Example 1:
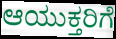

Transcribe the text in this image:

ಆಯುಕ್ತರಿಗೆ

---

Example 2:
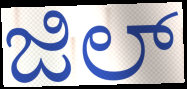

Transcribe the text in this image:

ಜಿಲ್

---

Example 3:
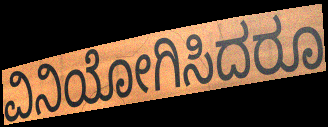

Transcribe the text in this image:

ವಿನಿಯೋಗಿಸಿದರೂ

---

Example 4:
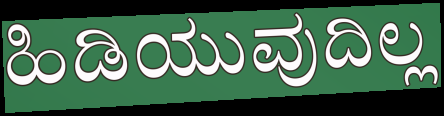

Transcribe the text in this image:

ಹಿಡಿಯುವುದಿಲ್ಲ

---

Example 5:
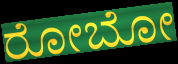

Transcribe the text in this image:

ರೋಬೋ